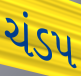
ચંડપ